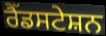
ਰੈੱਡਸਟੇਸ਼ਨ